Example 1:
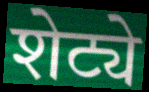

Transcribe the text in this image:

शेट्ये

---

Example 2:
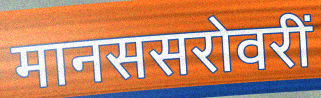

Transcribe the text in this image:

मानससरोवरीं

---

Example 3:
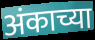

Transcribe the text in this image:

अंकाच्या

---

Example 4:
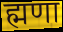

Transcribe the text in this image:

ह्मणा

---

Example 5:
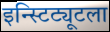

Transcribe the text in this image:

इन्स्टिट्यूटला